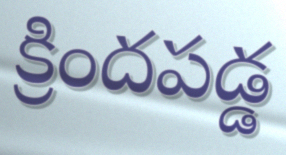
క్రిందపడ్డ